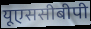
यूएससीबीपी